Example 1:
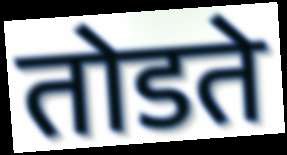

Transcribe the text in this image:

तोडते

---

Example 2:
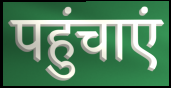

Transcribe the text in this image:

पहुंचाएं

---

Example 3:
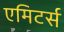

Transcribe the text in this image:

एमिटर्स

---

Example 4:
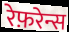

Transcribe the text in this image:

रेफ़रेन्स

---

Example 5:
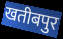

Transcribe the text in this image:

खतीबपुर